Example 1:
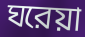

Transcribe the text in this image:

ঘরেয়া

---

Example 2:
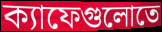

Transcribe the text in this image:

ক্যাফেগুলোতে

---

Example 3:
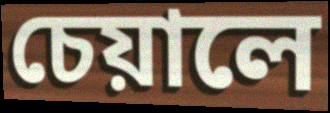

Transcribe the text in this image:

চেয়ালে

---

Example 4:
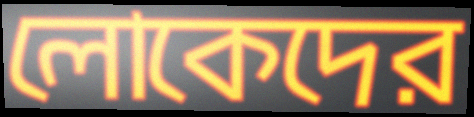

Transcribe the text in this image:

লোকেদের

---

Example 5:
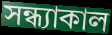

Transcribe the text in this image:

সন্ধ্যাকাল